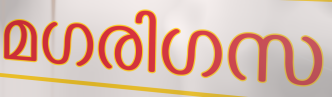
മഗരിഗസ